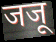
जजू